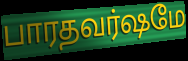
பாரதவர்ஷமே